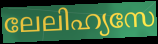
ലേലിഹ്യസേ